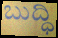
ಬುದ್ಧಿ